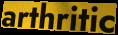
arthritic